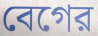
বেগের